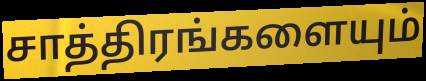
சாத்திரங்களையும்